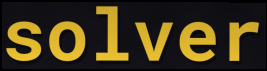
solver